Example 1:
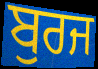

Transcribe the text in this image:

ਬੁਰਜ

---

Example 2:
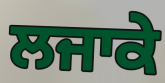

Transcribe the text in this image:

ਲਜਾਕੇ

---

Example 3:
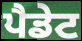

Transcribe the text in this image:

ਪੈਡੇਟ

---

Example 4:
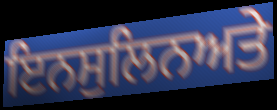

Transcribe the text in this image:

ਇਨਸੁਲਿਨਅਤੇ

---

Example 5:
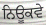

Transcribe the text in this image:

ਨਿਊਕਵੇ